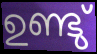
ഉണ്ടു്